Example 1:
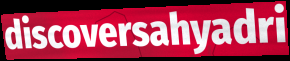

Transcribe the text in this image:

discoversahyadri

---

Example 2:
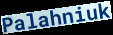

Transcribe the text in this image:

Palahniuk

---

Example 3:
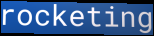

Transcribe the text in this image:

rocketing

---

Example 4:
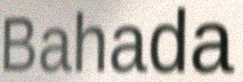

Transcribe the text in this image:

Bahada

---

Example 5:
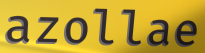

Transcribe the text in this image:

azollae